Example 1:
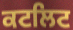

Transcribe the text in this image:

ਕਟਲਿਟ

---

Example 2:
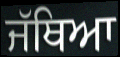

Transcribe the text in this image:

ਜੱਥਿਆ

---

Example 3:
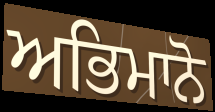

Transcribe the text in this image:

ਅਭਿਮਾਨੋ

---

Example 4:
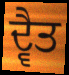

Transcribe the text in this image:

ਦ੍ਵੈਤ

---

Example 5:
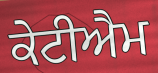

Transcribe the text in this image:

ਕੇਟੀਐਮ